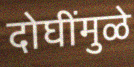
दोघींमुळे